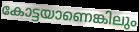
കോട്ടയാണെങ്കിലും